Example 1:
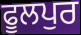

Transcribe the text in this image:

ਫੂਲਪੁਰ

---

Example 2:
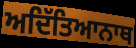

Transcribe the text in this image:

ਅਦਿੱਤਿਆਨਾਥ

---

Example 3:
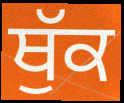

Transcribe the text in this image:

ਥੁੱਕ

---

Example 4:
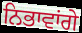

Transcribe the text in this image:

ਨਿਭਾਵਾਂਗੇ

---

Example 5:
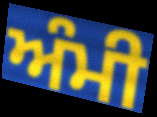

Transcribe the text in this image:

ਅੰਮੀ